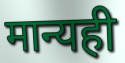
मान्यही